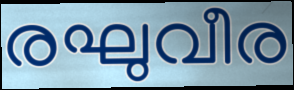
രഘുവീര